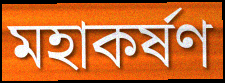
মহাকৰ্ষণ